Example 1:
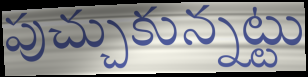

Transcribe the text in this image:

పుచ్చుకున్నట్టు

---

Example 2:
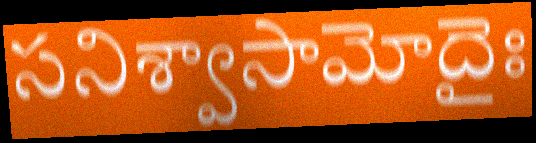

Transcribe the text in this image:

సనిశ్వాసామోదైః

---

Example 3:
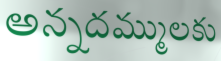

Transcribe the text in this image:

అన్నదమ్ములకు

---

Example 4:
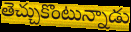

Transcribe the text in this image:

తెచ్చుకొంటున్నాడు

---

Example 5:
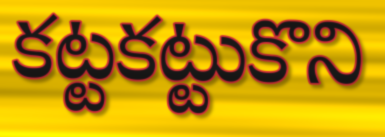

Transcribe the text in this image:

కట్టకట్టుకొని